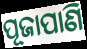
ପୂଜାପାଣି